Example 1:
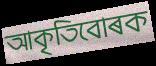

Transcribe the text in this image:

আকৃতিবোৰক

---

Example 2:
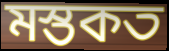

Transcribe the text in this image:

মস্তকত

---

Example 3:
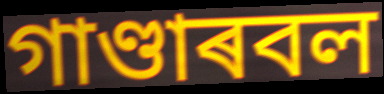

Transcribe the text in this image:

গাণ্ডাৰবল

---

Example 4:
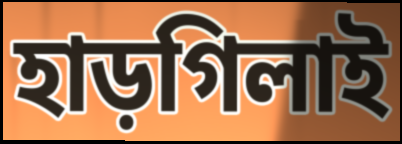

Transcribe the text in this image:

হাড়গিলাই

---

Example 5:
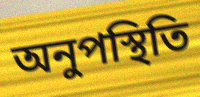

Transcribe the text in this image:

অনুপস্থিতি